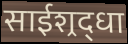
साईश्रद्धा